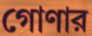
গোণার